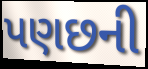
પણછની